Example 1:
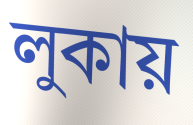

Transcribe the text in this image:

লুকায়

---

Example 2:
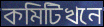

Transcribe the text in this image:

কমিটিখনে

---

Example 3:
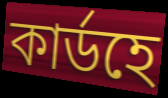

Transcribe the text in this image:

কাৰ্ডহে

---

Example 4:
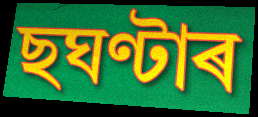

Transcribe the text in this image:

ছঘণ্টাৰ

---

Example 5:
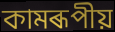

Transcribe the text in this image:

কামৰূপীয়